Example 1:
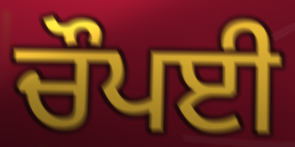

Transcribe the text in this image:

ਚੌਪਈ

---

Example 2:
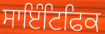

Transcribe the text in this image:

ਸਾਇੰਟਿਫਿਕ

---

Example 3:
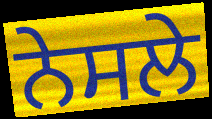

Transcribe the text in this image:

ਨੇਸਲੇ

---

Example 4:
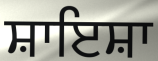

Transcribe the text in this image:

ਸ਼ਾਇਸ਼ਾ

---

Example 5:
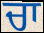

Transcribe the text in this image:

ਚਾ